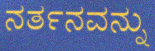
ನರ್ತನವನ್ನು